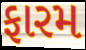
ફારમ